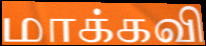
மாக்கவி